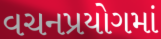
વચનપ્રયોગમાં